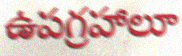
ఉపగ్రహాలూ